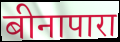
बीनापारा